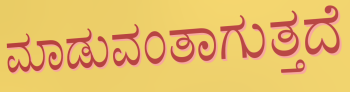
ಮಾಡುವಂತಾಗುತ್ತದೆ